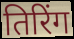
तिरिंग